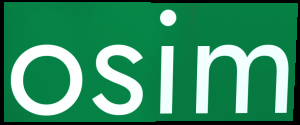
osim